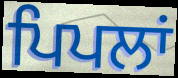
ਪਿਪਲਾਂ